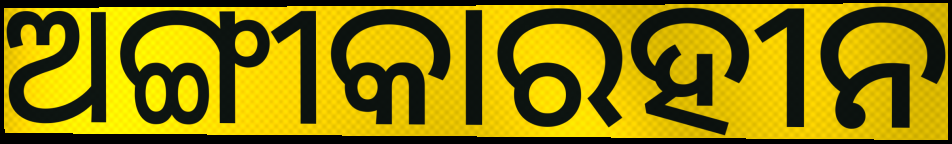
ଅଙ୍ଗୀକାରହୀନ